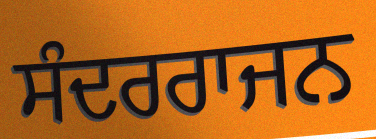
ਸੰਦਰਰਾਜਨ